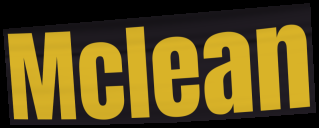
Mclean